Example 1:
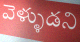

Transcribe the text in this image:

వెళ్ళుడని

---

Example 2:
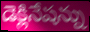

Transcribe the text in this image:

డెక్లినేషన్ను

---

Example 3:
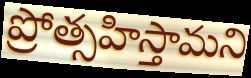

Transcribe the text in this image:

ప్రోత్సహిస్తామని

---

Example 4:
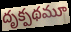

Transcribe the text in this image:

దృక్పథమూ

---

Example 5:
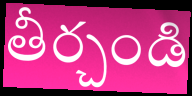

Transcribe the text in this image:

తీర్చండి